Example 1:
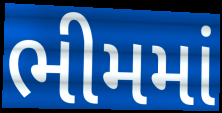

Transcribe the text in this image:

ભીમમાં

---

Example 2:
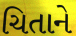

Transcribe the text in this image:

ચિતાને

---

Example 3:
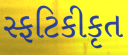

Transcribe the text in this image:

સ્ફટિકીકૃત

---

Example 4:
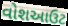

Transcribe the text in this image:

વોશઆઉટ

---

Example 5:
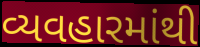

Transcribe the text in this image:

વ્યવહારમાંથી